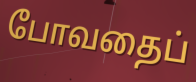
போவதைப்